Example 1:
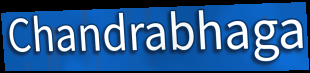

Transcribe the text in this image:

Chandrabhaga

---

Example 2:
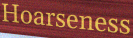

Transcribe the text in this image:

Hoarseness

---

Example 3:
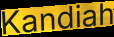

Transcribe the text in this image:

Kandiah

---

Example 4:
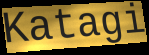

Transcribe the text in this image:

Katagi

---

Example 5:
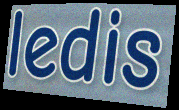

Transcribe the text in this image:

ledis